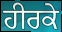
ਹੀਰਕੇ